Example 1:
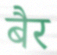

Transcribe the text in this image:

बैर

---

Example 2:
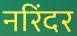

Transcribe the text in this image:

नरिंदर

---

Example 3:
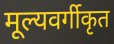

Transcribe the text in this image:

मूल्यवर्गीकृत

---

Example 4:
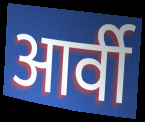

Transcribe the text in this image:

आर्वी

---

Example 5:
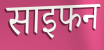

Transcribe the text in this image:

साइफन